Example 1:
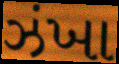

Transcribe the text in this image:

ઝંખા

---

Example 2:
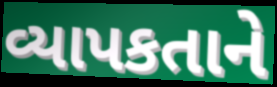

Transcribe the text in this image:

વ્યાપકતાને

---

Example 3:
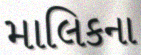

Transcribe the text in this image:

માલિકના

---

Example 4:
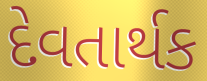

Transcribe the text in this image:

દેવતાર્થક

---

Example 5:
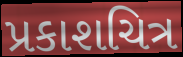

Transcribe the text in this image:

પ્રકાશચિત્ર